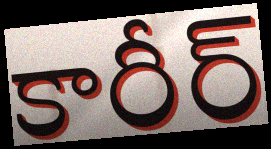
కారీర్